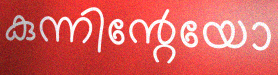
കുന്നിന്റേയോ